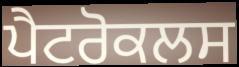
ਪੈਟਰੋਕਲਸ